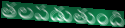
తలపడుతుంది